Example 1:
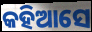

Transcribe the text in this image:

କହିଆସେ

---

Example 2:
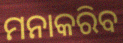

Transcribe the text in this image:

ମନାକରିବ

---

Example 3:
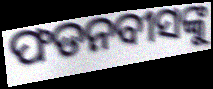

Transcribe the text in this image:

ଫଡନବୀସଙ୍କୁ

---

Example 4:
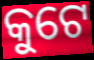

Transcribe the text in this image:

କୁଟେ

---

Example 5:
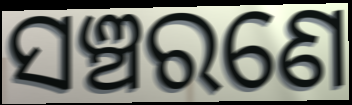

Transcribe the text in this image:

ସଞ୍ଚରଣେ